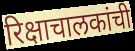
रिक्षाचालकांची